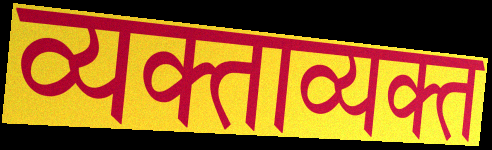
व्यक्ताव्यक्त